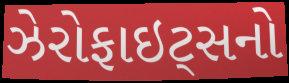
ઝેરોફાઇટ્સનો